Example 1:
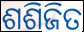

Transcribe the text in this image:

ଶଶିଜିତ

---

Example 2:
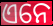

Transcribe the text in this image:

ଏନେ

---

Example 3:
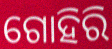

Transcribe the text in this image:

ଗୋହିରି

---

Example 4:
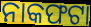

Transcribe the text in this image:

ନାକଫଟା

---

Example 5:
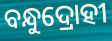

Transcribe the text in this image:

ବନ୍ଧୁଦ୍ରୋହୀ